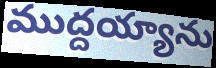
ముద్దయ్యాను